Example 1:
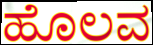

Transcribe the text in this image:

ಹೊಲವ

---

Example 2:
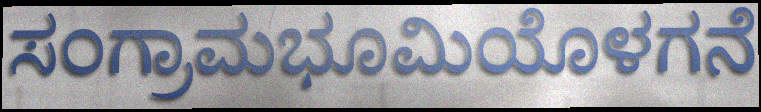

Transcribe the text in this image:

ಸಂಗ್ರಾಮಭೂಮಿಯೊಳಗನೆ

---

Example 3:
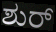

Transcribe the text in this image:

ಶುರ್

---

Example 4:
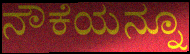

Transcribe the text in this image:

ನೌಕೆಯನ್ನೂ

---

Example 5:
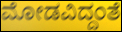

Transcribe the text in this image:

ಮೋಡವಿದ್ದಂತೆ